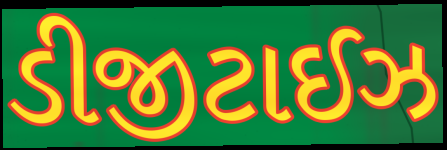
ડીજીટાઈઝ